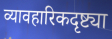
व्यावहारिकदृष्ट्या